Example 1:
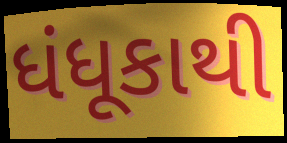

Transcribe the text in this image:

ધંધૂકાથી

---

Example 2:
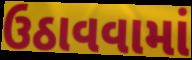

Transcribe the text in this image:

ઉઠાવવામાં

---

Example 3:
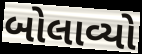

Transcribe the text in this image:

બોલાવ્યો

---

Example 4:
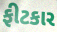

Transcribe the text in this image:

ફીટકાર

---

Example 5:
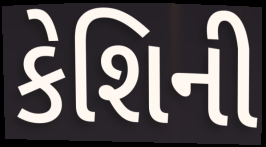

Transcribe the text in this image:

કેશિની